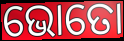
ଭୋତୋ